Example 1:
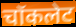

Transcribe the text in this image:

चॉकलेट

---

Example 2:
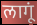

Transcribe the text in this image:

लागूं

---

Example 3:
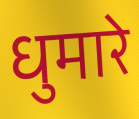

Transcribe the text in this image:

धुमारे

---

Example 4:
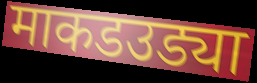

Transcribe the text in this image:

माकडउड्या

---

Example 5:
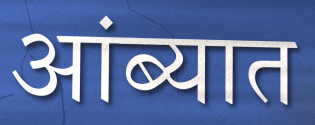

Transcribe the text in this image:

आंब्यात